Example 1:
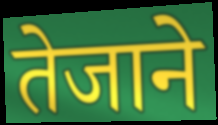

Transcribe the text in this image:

तेजाने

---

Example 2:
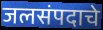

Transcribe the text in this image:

जलसंपदाचे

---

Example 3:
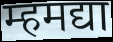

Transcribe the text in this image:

म्हमद्या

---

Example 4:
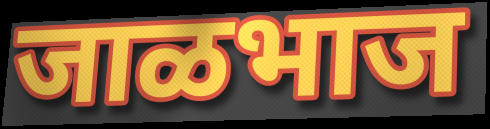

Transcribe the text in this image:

जाळभाज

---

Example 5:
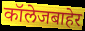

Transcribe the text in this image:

कॉलेजबाहेर